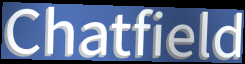
Chatfield